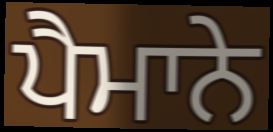
ਪੈਮਾਨੇ